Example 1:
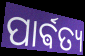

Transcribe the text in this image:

ପାର୍ଵତ୍ଯ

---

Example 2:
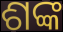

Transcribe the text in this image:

ଶଙ୍କ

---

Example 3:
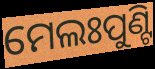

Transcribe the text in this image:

ମେଲଃପୁଣ୍ଟି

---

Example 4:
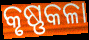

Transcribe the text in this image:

କୃଷ୍ଣକଳା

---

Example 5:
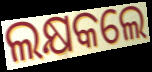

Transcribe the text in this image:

ଲକ୍ଷକଲେ